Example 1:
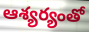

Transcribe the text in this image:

ఆశ్యర్యంతో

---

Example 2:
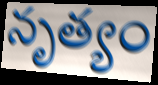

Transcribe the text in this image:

నృత్యం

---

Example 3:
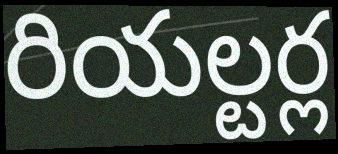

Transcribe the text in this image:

రియల్టర్ల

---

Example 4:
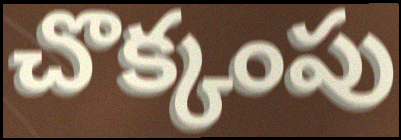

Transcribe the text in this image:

చొక్కంపు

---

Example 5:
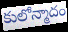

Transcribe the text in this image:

కులోన్మాదం